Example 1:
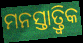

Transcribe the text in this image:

ମନସ୍ତାତ୍ତ୍ୱିକ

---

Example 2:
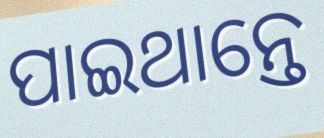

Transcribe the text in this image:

ପାଇଥାନ୍ତେ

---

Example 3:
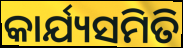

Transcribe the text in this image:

କାର୍ଯ୍ୟସମିତି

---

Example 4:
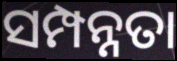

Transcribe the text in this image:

ସମ୍ପନ୍ନତା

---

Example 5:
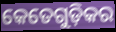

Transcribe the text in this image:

କେତେଗୁଡ଼ିକର